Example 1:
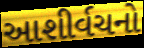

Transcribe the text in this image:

આશીર્વચનો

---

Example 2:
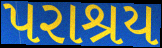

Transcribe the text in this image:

પરાશ્રય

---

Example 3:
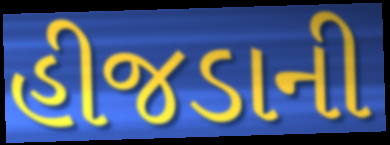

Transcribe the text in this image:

હીજડાની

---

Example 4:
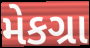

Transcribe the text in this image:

મેકગ્રા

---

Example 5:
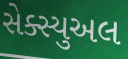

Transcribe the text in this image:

સેક્સ્યુઅલ